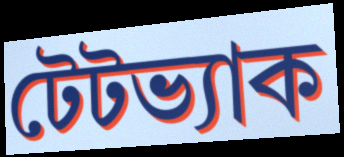
টেটভ্যাক